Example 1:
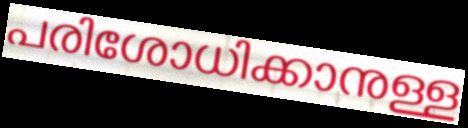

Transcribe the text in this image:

പരിശോധിക്കാനുള്ള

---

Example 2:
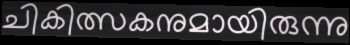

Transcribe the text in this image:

ചികിത്സകനുമായിരുന്നു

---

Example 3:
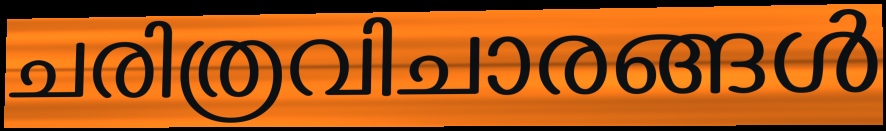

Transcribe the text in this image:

ചരിത്രവിചാരങ്ങൾ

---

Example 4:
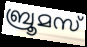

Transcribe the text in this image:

ബ്രൂമസ്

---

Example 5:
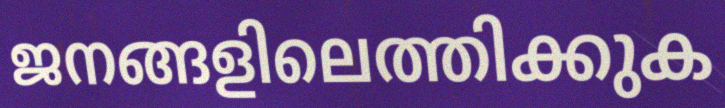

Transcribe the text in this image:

ജനങ്ങളിലെത്തിക്കുക